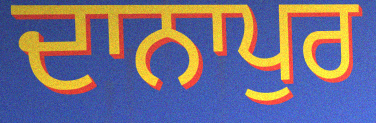
ਦਾਨਾਪੁਰ